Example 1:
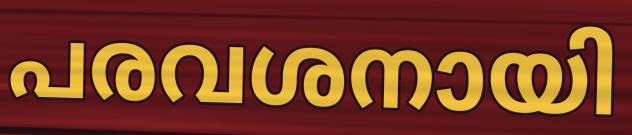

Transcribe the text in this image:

പരവശനായി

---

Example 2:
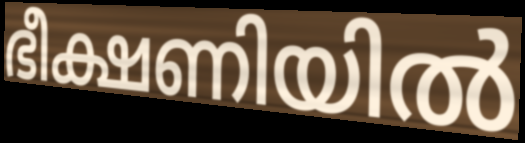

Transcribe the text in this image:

ഭീക്ഷണിയിൽ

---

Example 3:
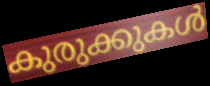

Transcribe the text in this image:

കുരുക്കുകൾ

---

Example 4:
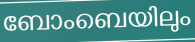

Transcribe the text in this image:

ബോംബെയിലും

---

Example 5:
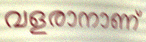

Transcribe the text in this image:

വളരാനാണ്